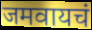
जमवायचं